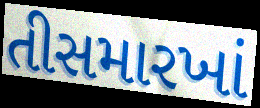
તીસમારખાં